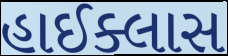
હાઈક્લાસ